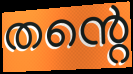
തന്റെ